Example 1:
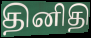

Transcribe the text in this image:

தினிதி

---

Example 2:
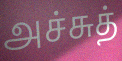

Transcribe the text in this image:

அச்சுத்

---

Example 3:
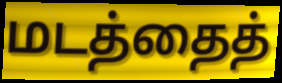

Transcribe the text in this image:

மடத்தைத்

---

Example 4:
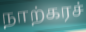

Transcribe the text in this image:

நாற்கரச்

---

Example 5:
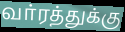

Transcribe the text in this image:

வர்ரத்துக்கு